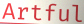
Artful